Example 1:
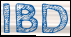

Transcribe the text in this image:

IBD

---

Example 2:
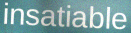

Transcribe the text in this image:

insatiable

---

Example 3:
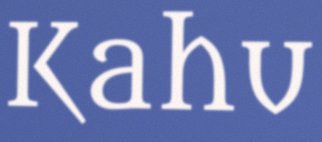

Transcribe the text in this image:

Kahu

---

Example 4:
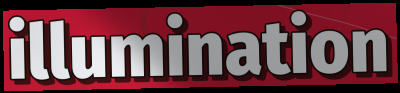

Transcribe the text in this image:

illumination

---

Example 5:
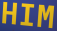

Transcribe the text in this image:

HIM